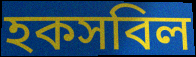
হকসবিল